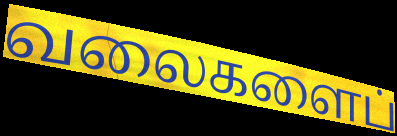
வலைகளைப்